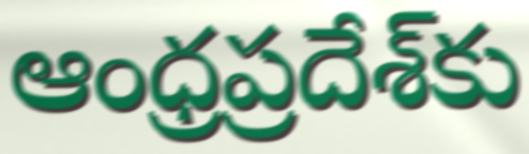
ఆంధ్రప్రదేశ్‌కు